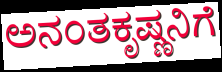
ಅನಂತಕೃಷ್ಣನಿಗೆ